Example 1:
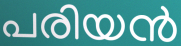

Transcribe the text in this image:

പരിയൻ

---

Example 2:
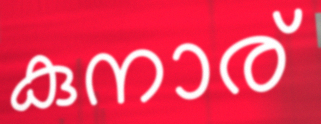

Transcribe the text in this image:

കുനാര്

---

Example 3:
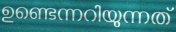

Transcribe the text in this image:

ഉണ്ടെന്നറിയുന്നത്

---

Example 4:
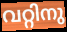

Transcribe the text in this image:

വറ്റിനു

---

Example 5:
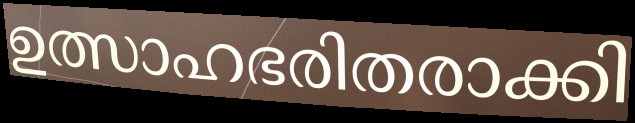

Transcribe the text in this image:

ഉത്സാഹഭരിതരാക്കി